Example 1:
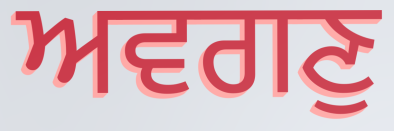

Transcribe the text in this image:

ਅਵਗਣੁ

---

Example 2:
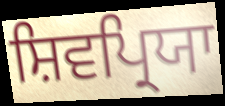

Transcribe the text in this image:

ਸ਼ਿਵਪ੍ਰਿਯਾ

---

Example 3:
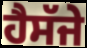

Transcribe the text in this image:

ਹੈਸੱਜੇ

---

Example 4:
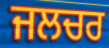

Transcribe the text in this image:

ਜਲਚਰ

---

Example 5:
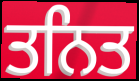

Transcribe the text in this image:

ਤਨਿਤ